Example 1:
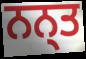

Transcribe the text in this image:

ਨਨ੍ਤ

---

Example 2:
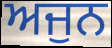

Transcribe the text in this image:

ਅਜੁਨ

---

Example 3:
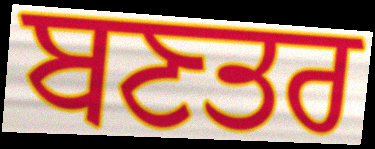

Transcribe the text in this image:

ਬਣਤਰ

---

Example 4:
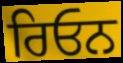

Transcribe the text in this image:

ਰਿਓਨ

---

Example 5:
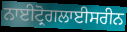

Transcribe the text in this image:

ਨਾਈਟ੍ਰੋਗਲਾਈਸਰੀਨ